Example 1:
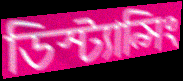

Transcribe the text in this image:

ডিস্ট্যান্সিং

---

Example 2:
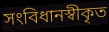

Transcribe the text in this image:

সংবিধানস্বীকৃত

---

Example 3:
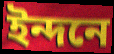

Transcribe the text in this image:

ইন্দনে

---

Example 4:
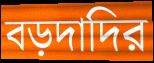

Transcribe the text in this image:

বড়দাদির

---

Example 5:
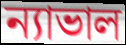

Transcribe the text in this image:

ন্যাভাল